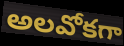
అలవోకగా